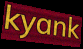
kyank